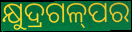
କ୍ଷୁଦ୍ରଗଳ୍‌ପର